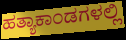
ಹತ್ಯಾಕಾಂಡಗಳಲ್ಲಿ